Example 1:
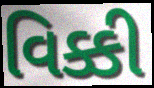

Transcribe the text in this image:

વિક્કી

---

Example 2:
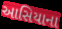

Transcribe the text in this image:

આસિયાના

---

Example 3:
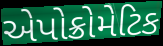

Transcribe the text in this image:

એપોક્રોમેટિક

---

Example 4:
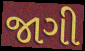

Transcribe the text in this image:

જાગી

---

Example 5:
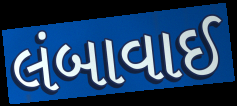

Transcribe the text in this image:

લંબાવાઈ